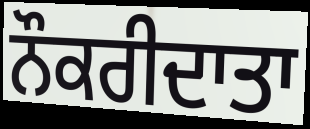
ਨੌਕਰੀਦਾਤਾ